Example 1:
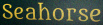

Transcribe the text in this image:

Seahorse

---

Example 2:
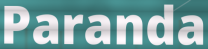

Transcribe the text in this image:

Paranda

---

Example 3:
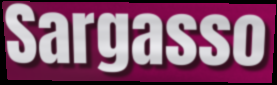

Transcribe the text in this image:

Sargasso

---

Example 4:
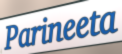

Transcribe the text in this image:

Parineeta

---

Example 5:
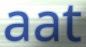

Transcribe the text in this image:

aat